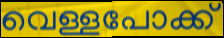
വെള്ളപോക്ക്